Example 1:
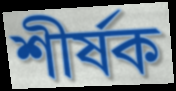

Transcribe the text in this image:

শীর্ষক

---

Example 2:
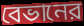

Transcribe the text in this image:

বেভানের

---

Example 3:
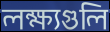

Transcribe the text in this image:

লক্ষ্যগুলি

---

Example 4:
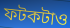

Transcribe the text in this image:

ফটকটাও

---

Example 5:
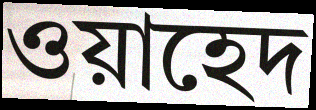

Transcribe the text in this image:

ওয়াহেদ